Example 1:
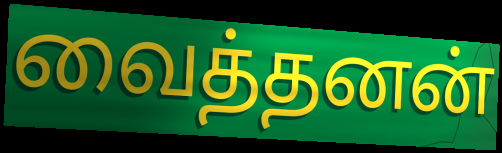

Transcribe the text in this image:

வைத்தனன்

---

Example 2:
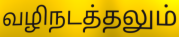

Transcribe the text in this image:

வழிநடத்தலும்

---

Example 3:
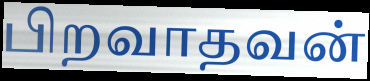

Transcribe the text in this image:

பிறவாதவன்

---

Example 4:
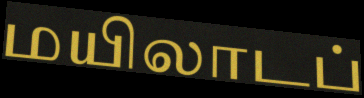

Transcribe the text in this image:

மயிலாடப்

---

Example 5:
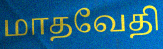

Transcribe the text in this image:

மாதவேதி